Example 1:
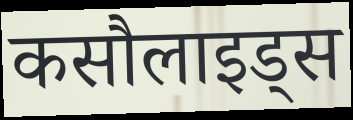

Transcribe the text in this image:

कसौलाइड्स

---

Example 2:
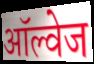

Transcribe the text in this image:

ऑल्वेज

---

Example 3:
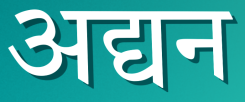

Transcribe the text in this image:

अद्यन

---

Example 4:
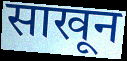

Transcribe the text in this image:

साखून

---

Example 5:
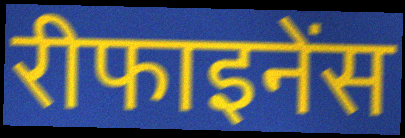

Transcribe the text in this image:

रीफाइनेंस